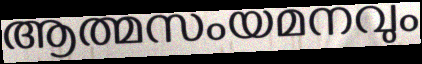
ആത്മസംയമനവും